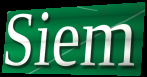
Siem